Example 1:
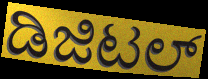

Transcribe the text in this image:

ಡಿಜಿಟಲ್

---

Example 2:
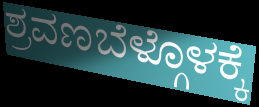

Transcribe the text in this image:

ಶ್ರವಣಬೆಳ್ಗೊಳಕ್ಕೆ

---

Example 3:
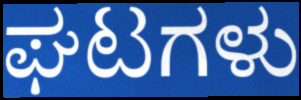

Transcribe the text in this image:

ಘಟಗಳು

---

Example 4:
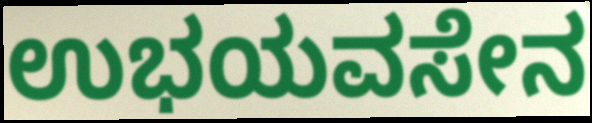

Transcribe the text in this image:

ಉಭಯವಸೇನ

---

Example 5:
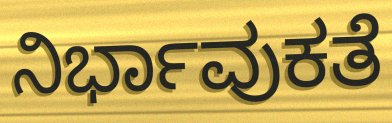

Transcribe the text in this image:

ನಿರ್ಭಾವುಕತೆ